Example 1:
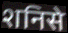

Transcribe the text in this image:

शनिसे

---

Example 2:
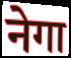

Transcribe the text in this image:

नेगा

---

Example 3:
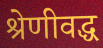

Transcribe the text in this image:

श्रेणीवद्ध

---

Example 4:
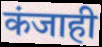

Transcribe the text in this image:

कंजाही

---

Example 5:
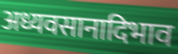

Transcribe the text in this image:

अध्यवसानादिभाव